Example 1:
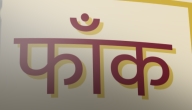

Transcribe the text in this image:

फाँक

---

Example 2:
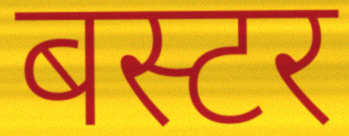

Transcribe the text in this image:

बस्टर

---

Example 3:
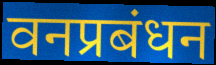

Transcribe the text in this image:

वनप्रबंधन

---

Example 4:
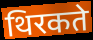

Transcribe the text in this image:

थिरकते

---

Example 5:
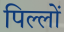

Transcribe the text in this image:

पिल्लों